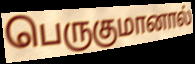
பெருகுமானால்